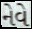
નેવે